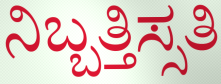
ನಿಬ್ಬತ್ತಿಸ್ಸತಿ